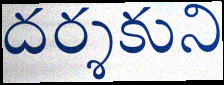
దర్శకుని